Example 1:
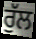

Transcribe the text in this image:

ਰੁੱਲ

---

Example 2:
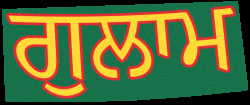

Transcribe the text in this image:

ਗੁਲਾਮ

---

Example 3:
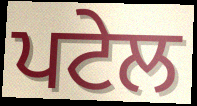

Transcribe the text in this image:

ਪਟੇਲ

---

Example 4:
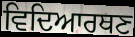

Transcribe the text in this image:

ਵਿਦਿਆਰਥਣ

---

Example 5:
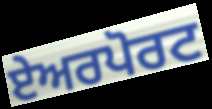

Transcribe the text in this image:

ਏਅਰਪੋਰਟ